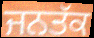
ਜਨਤੱਕ